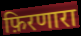
फ़िरणारा